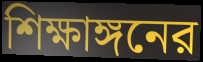
শিক্ষাঙ্গনের